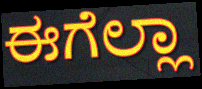
ಈಗೆಲ್ಲಾ